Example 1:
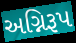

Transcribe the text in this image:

અગ્નિરૂપ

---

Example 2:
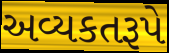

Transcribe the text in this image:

અવ્યકતરૂપે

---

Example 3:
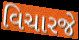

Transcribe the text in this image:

વિચારજે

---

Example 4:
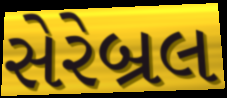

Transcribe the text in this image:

સેરેબ્રલ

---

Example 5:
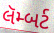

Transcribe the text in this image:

લૅમ્બર્ટ